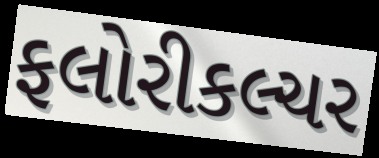
ફલોરીકલ્ચર